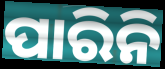
ପାରିନି